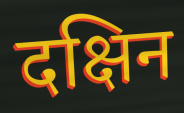
दक्षिन